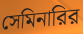
সেমিনারির